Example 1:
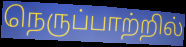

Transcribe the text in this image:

நெருப்பாற்றில்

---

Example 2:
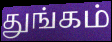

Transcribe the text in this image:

துங்கம்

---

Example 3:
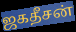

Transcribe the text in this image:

ஜகதீசன்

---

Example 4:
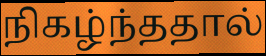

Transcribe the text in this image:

நிகழ்ந்ததால்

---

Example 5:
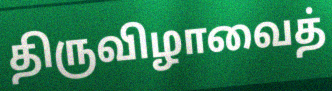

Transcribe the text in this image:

திருவிழாவைத்